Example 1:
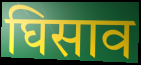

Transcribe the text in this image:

घिसाव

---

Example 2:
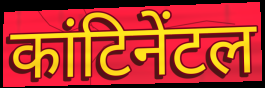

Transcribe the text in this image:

कांटिनेंटल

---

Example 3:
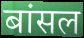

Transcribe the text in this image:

बांसल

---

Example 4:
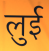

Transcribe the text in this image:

लुई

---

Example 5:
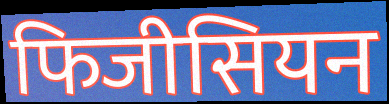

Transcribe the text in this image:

फिजीसियन